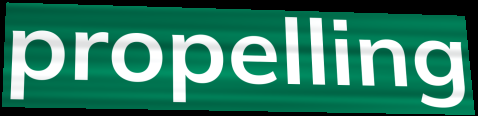
propelling